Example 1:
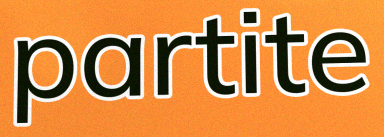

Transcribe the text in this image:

partite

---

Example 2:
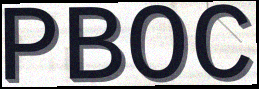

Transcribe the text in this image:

PBOC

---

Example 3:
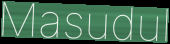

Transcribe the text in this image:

Masudul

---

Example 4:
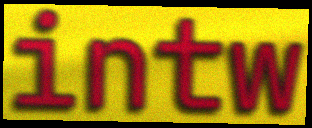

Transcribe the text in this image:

intw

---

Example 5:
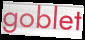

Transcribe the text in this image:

goblet